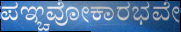
ಪಞ್ಚವೋಕಾರಭವೇ